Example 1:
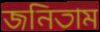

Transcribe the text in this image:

জনিতাম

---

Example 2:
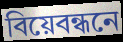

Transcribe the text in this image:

বিয়েবন্ধনে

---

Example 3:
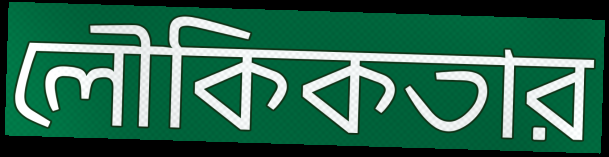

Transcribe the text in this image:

লৌকিকতার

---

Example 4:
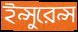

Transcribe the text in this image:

ইন্সুরেন্স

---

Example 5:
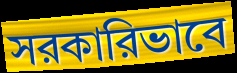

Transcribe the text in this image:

সরকারিভাবে